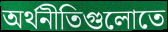
অর্থনীতিগুলোতে